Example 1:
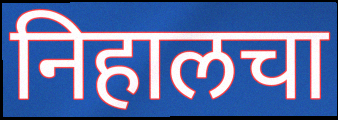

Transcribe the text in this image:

निहालचा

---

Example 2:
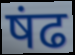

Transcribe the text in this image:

षंढ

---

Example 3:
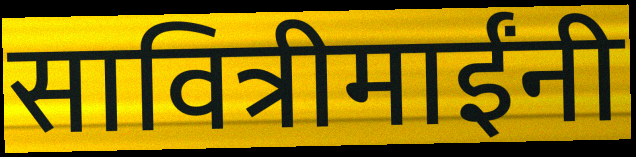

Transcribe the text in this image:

सावित्रीमाईंनी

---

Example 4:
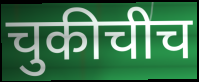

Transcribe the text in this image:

चुकीचीच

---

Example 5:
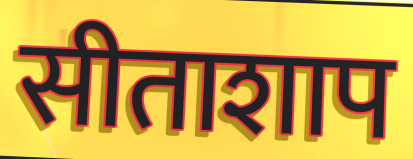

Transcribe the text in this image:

सीताशाप